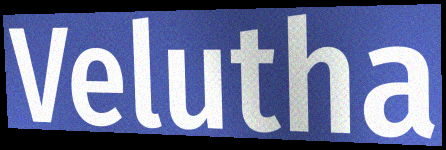
Velutha